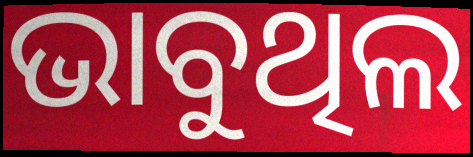
ଭାବୁଥିଲ